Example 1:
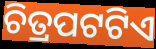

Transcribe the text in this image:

ଚିତ୍ରପଟଟିଏ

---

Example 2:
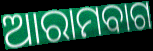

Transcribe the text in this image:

ଆରାମବାଗ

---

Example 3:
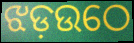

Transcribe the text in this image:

ଝଡ଼ଉଠେ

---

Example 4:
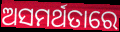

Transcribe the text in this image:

ଅସମର୍ଥତାରେ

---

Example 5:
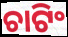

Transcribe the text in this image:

ଚାଟିଂ